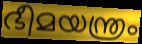
ഭീമയന്ത്രം